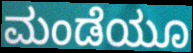
ಮಂಡೆಯೂ